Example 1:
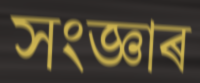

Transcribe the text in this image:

সংজ্ঞাৰ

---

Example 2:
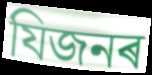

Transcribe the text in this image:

যিজনৰ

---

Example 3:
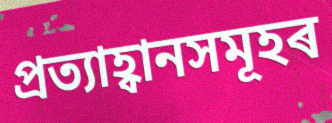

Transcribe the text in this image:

প্ৰত্যাহ্বানসমূহৰ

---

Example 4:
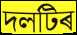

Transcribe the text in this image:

দলটিৰ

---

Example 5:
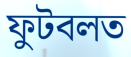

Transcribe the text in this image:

ফুটবলত